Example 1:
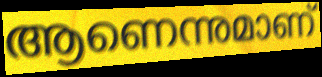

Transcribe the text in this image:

ആണെന്നുമാണ്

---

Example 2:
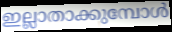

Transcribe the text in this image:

ഇല്ലാതാക്കുമ്പോൾ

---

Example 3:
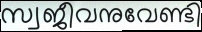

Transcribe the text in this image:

സ്വജീവനുവേണ്ടി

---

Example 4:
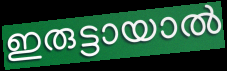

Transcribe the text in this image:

ഇരുട്ടായാൽ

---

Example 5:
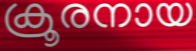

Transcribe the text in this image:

ക്രൂരനായ